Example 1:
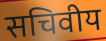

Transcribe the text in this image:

सचिवीय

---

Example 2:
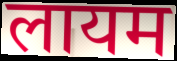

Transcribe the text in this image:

लायम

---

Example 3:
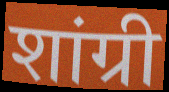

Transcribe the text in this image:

शांग्री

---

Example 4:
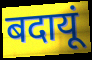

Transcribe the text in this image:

बदायूं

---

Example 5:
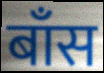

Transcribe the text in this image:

बाँस